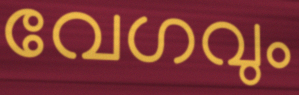
വേഗവും